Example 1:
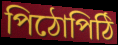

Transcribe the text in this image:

পিঠোপিঠি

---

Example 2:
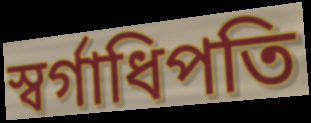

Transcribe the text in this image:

স্বর্গাধিপতি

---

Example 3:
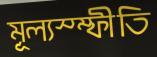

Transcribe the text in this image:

মূল্যস্ম্ফীতি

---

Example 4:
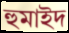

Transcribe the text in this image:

হুমাইদ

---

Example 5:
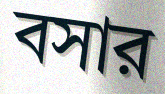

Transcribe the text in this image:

বসার